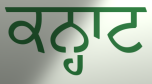
ਕਨ੍ਹਾਟ